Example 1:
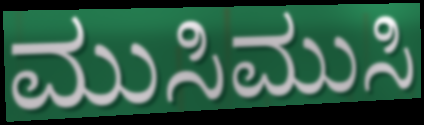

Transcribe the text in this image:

ಮುಸಿಮುಸಿ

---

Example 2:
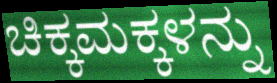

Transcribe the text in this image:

ಚಿಕ್ಕಮಕ್ಕಳನ್ನು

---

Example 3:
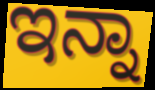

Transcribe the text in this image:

ಇನ್ನಾ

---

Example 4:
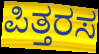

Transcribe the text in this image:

ಪಿತ್ತರಸ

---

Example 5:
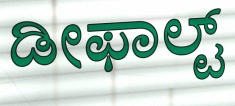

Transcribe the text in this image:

ಡೀಫಾಲ್ಟ್